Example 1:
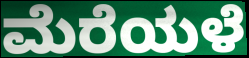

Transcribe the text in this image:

ಮೆರೆಯಳೆ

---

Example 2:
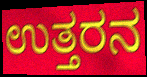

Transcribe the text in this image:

ಉತ್ತರನ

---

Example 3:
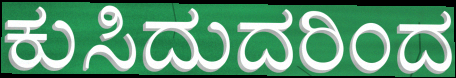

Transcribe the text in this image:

ಕುಸಿದುದರಿಂದ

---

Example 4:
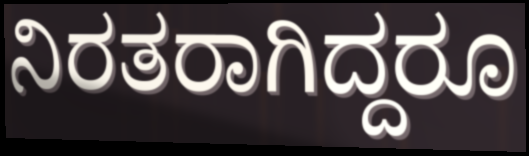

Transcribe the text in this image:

ನಿರತರಾಗಿದ್ದರೂ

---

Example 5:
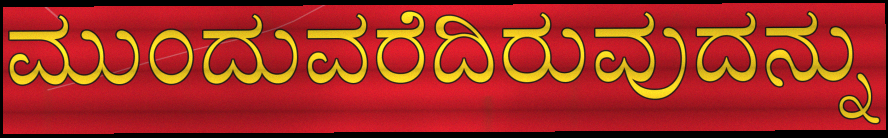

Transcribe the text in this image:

ಮುಂದುವರೆದಿರುವುದನ್ನು